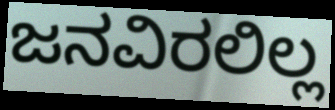
ಜನವಿರಲಿಲ್ಲ